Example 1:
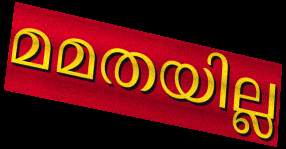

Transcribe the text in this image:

മമതയില്ല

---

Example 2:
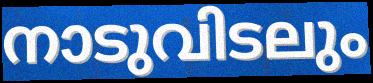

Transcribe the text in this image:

നാടുവിടലും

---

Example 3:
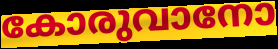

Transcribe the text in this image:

കോരുവാനോ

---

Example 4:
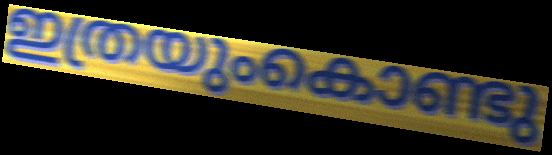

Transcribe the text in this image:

ഇത്രയുംകൊണ്ടു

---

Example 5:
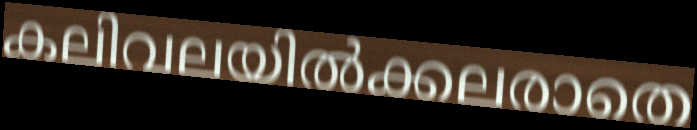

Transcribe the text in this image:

കലിവലയിൽക്കലരാതെ